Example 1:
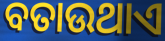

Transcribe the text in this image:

ବତାଉଥାଏ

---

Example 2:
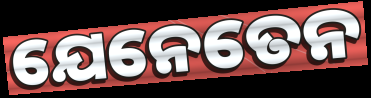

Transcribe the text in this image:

ଯେନେତେନ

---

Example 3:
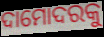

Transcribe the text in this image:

ଦାମୋଦରକୁ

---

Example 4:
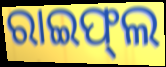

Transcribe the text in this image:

ରାଇଫ୍‌ଲ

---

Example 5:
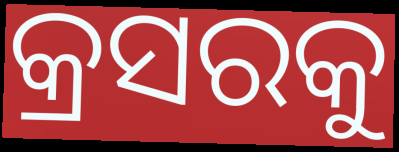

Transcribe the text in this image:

କ୍ରସରକୁ